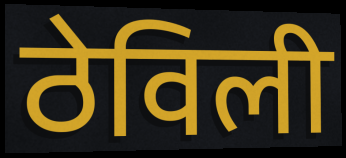
ठेविली